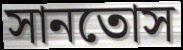
সানতোস